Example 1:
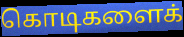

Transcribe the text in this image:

கொடிகளைக்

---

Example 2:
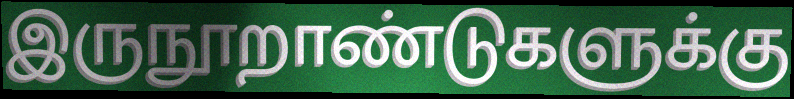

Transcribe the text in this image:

இருநூறாண்டுகளுக்கு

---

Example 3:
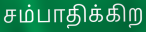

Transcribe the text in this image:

சம்பாதிக்கிற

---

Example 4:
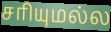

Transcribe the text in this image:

சரியுமல்ல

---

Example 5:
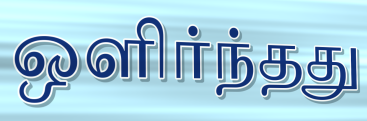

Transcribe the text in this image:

ஒளிர்ந்தது